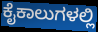
ಕೈಕಾಲುಗಳಲ್ಲಿ